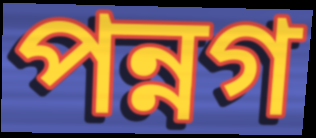
পন্নগ